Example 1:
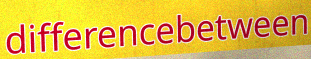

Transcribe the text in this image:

differencebetween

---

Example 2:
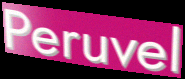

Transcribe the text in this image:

Peruvel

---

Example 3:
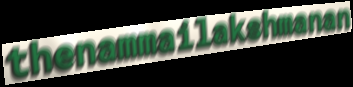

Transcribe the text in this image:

thenammailakshmanan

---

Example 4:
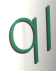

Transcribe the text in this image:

ql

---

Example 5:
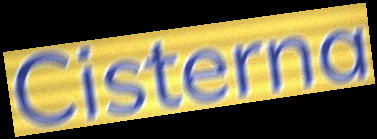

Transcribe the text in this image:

Cisterna